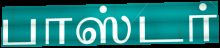
பாஸ்டர்